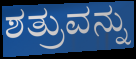
ಶತ್ರುವನ್ನು